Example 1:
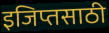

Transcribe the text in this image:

इजिप्तसाठी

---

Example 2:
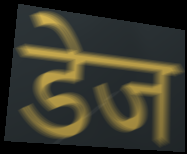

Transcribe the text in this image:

डेज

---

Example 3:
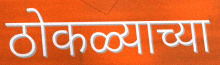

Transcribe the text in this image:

ठोकळ्याच्या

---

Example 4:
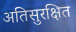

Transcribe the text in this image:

अतिसुरक्षित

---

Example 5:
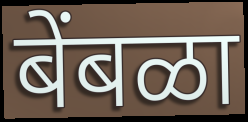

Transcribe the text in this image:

बेंबळा